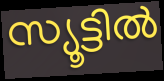
സ്യൂട്ടിൽ